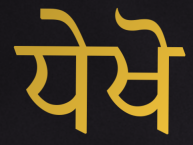
ਧੇਖੋ